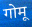
गोमू